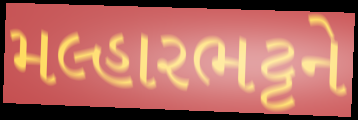
મલ્હારભટ્ટને